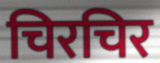
चिरचिर